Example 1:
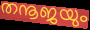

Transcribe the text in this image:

തനൂജയും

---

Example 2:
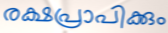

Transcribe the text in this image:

രക്ഷപ്രാപിക്കും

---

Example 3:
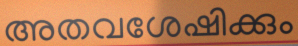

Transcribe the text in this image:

അതവശേഷിക്കും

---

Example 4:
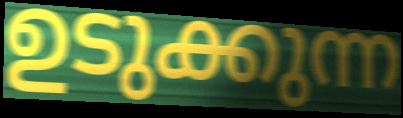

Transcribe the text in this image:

ഉടുക്കുന്ന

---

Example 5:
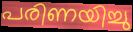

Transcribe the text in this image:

പരിണയിച്ചു